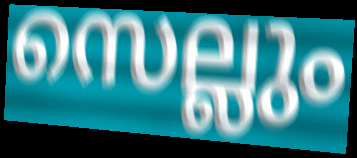
സെല്ലും